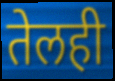
तेलही